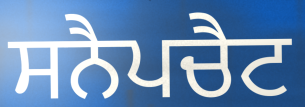
ਸਨੈਪਚੈਟ